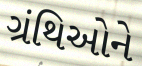
ગ્રંથિઓને